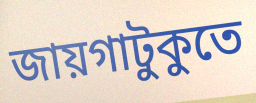
জায়গাটুকুতে